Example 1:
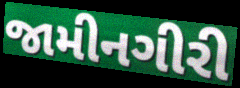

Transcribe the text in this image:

જામીનગીરી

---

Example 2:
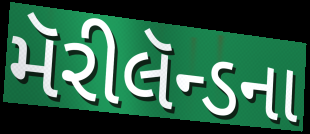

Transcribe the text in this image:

મૅરીલૅન્ડના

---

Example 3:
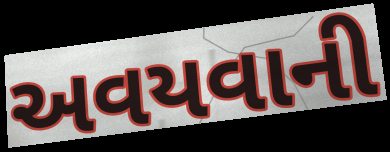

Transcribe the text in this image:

અવયવાની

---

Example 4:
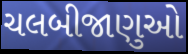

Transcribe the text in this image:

ચલબીજાણુઓ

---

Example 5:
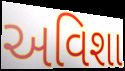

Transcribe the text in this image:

અવિશા